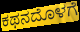
ಕಥನದೊಳಗೆ